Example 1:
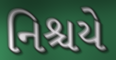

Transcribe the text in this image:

નિશ્ચયે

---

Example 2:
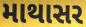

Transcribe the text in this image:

માથાસર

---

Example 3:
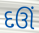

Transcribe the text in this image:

દઊં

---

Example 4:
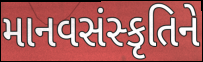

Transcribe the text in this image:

માનવસંસ્કૃતિને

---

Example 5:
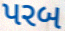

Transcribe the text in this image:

પરબ